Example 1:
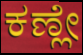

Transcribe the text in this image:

ಕಣ್ಲೇ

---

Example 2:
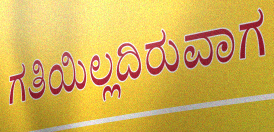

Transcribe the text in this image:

ಗತಿಯಿಲ್ಲದಿರುವಾಗ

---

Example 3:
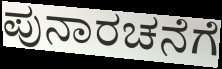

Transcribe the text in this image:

ಪುನಾರಚನೆಗೆ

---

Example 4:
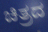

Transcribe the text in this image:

ಚಿತ್ರದ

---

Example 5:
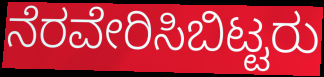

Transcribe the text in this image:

ನೆರವೇರಿಸಿಬಿಟ್ಟರು